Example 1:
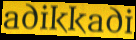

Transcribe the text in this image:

adikkadi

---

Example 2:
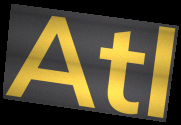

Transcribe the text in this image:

Atl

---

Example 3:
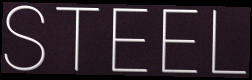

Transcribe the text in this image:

STEEL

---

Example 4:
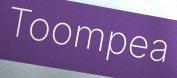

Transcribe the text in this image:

Toompea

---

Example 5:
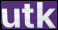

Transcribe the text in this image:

utk